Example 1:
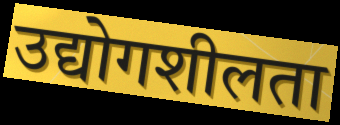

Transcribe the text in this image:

उद्योगशीलता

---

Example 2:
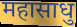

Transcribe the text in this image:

महासाधु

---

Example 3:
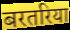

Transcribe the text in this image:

बरतरिया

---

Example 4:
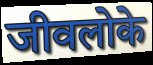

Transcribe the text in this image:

जीवलोके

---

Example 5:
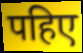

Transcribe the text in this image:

पहिए